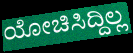
ಯೋಚಿಸಿದ್ದಿಲ್ಲ